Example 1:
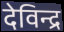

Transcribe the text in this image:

देविन्द्र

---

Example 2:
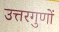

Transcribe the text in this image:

उत्तरगुणों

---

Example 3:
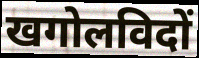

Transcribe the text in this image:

खगोलविदों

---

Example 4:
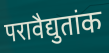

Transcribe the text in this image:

परावैद्युतांक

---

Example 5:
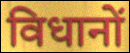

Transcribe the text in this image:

विधानों